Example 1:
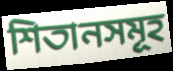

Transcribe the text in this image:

শিতানসমূহ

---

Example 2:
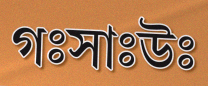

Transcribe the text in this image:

গঃসাঃউঃ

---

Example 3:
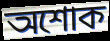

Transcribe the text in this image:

অশোক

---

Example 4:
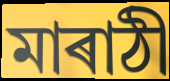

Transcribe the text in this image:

মাৰাঠী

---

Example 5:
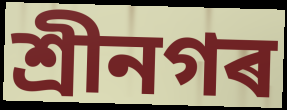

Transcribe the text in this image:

শ্ৰীনগৰ